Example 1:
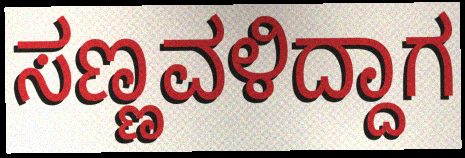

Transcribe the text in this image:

ಸಣ್ಣವಳಿದ್ದಾಗ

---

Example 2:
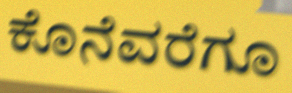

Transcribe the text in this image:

ಕೊನೆವರೆಗೂ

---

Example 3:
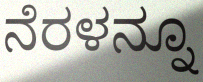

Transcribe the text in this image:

ನೆರಳನ್ನೂ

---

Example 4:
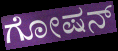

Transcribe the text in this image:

ಗೋಷನ್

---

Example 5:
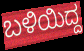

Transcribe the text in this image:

ಬಳಿಯಿದ್ದ